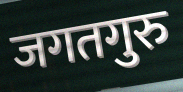
जगतगुरु